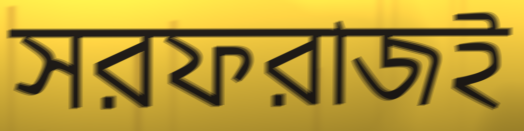
সরফরাজই